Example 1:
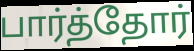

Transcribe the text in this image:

பார்த்தோர்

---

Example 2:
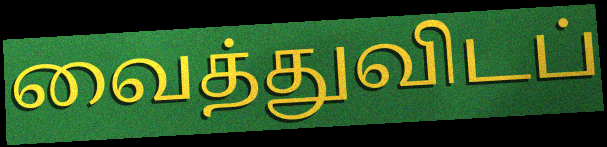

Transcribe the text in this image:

வைத்துவிடப்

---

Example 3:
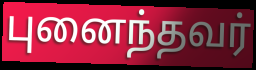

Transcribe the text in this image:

புனைந்தவர்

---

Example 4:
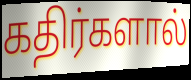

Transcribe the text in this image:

கதிர்களால்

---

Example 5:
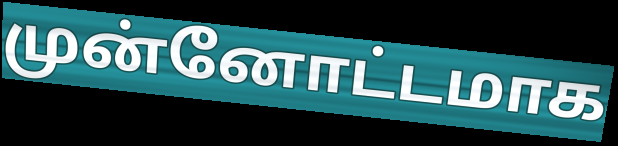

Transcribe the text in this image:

முன்னோட்டமாக